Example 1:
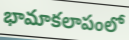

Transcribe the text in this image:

భామాకలాపంలో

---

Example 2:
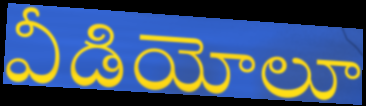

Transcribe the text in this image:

వీడియోలూ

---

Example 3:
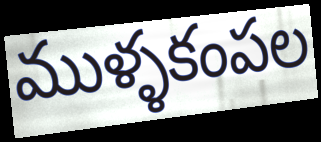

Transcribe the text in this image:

ముళ్ళకంపల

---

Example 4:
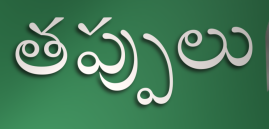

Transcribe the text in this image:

తప్పులు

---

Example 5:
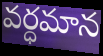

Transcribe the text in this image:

వర్ధమాన